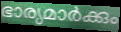
ഭാര്യമാർക്കും